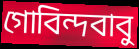
গোবিন্দবাবু